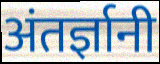
अंतर्ज्ञानी